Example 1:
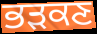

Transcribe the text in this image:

ਭੜਕਣ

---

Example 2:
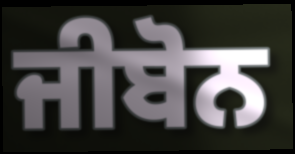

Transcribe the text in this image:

ਜੀਬੋਨ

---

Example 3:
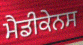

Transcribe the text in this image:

ਮੈਡੀਕੇਨਸ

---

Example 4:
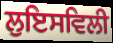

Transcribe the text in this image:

ਲੁਇਸਵਿਲੀ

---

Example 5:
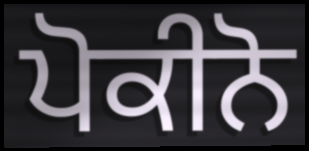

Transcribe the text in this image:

ਪੋਕੀਨੋ